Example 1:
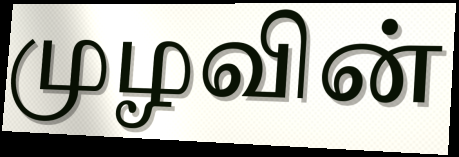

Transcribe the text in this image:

முழவின்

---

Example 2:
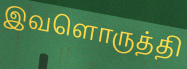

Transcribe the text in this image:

இவளொருத்தி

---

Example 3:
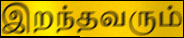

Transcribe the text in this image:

இறந்தவரும்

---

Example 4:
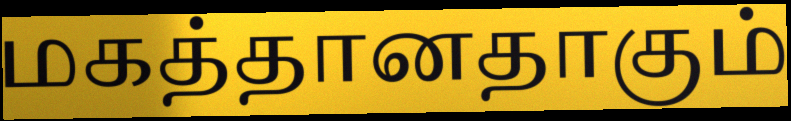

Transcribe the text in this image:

மகத்தானதாகும்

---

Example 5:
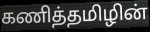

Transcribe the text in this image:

கணித்தமிழின்